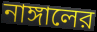
নাঙ্গালের